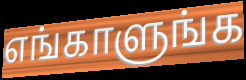
எங்காளுங்க